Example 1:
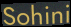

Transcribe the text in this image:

Sohini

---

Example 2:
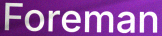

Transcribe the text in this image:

Foreman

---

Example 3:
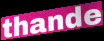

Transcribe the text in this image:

thande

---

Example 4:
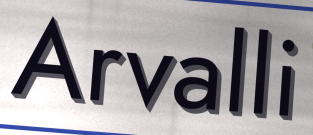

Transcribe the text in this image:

Arvalli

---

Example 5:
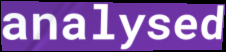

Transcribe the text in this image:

analysed